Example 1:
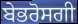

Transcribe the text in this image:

ਬੇਭਰੋਸਗੀ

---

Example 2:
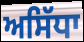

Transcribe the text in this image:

ਅਸਿੱਧਾ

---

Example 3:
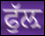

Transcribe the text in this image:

ਫੁੱਲ਼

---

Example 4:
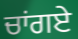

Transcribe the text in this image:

ਚਾਂਗਏ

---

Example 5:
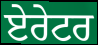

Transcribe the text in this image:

ਏਰੇਟਰ